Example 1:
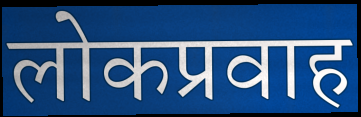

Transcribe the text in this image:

लोकप्रवाह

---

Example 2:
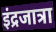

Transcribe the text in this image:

इंद्रजात्रा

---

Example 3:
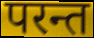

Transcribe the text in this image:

परन्त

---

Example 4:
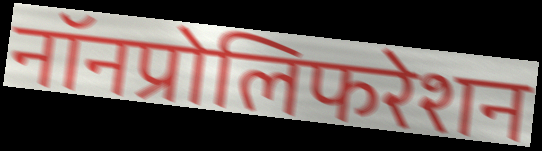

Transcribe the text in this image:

नॉनप्रोलिफरेशन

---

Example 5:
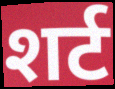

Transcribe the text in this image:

शर्ट